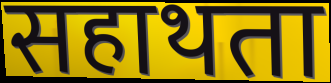
सहाथता